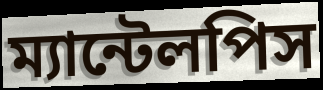
ম্যান্টেলপিস